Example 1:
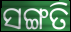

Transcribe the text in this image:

ସଙ୍ଗତି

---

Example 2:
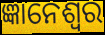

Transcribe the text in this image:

ଜ୍ଞାନେଶ୍ୱର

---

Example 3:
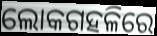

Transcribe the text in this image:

ଲୋକଗହଳିରେ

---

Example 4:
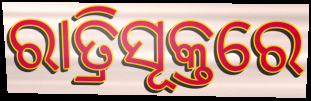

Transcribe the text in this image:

ରାତ୍ରିସୂକ୍ତରେ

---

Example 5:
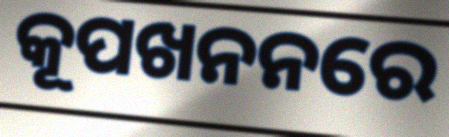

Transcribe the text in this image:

କୂପଖନନରେ